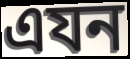
এযন